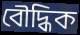
বৌদ্ধিক